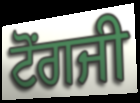
ਟੋਂਗਜੀ